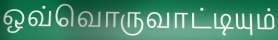
ஒவ்வொருவாட்டியும்